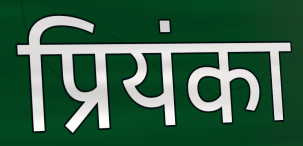
प्रियंका